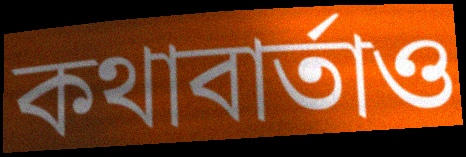
কথাবার্তাও